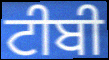
ਟੀਬੀ